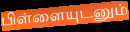
பிள்ளையுடனும்